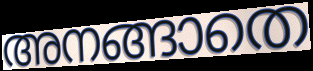
അനങ്ങാതെ